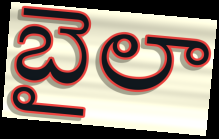
బైలా